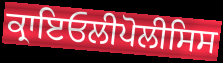
ਕ੍ਰਾਇਓਲੀਪੋਲੀਸਿਸ